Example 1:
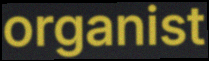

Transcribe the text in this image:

organist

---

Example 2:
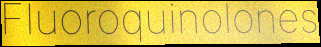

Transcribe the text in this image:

Fluoroquinolones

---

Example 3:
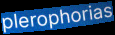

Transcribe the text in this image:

plerophorias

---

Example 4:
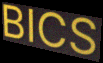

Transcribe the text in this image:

BICS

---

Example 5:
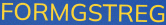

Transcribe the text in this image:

FORMGSTREG